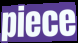
piece